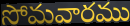
సోమవారము